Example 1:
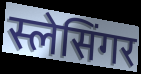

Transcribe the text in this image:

स्लेसिंगर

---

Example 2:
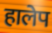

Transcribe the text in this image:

हालेप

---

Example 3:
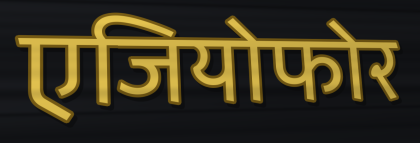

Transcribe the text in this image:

एजियोफोर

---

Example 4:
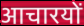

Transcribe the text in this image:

आचारयों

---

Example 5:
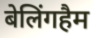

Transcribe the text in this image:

बेलिंगहैम